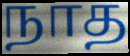
நாத